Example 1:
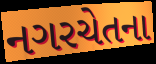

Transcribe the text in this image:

નગરચેતના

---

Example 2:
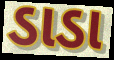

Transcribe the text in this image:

ડાડા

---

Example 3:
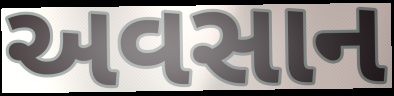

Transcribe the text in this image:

અવસાન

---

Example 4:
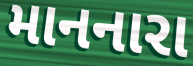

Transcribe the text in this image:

માનનારા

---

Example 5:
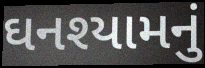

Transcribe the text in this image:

ઘનશ્યામનું